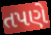
તપણે